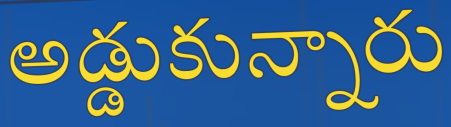
అడ్డుకున్నారు